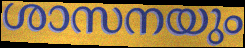
ശാസനയും